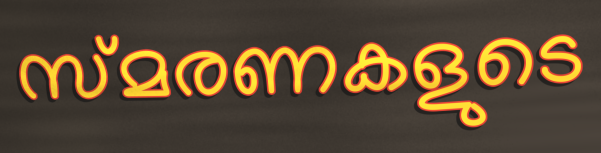
സ്മരണകളുടെ